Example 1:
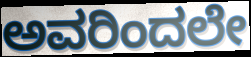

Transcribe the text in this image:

ಅವರಿಂದಲೇ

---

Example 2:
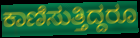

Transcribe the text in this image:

ಕಾಣಿಸುತ್ತಿದ್ದರೂ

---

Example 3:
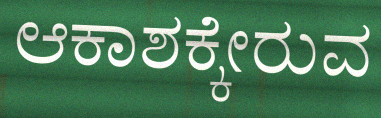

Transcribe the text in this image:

ಆಕಾಶಕ್ಕೇರುವ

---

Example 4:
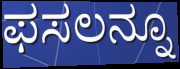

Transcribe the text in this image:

ಫಸಲನ್ನೂ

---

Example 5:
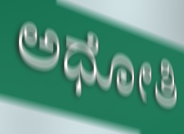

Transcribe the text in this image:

ಅಧೋತಿ